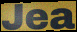
Jea